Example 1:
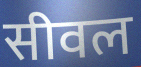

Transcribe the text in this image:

सीवल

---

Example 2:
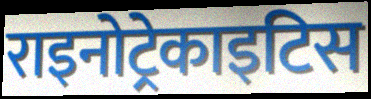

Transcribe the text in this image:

राइनोट्रेकाइटिस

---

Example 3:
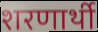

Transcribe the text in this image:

शरणार्थी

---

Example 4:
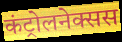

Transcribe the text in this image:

कंट्रोलनेक्सस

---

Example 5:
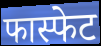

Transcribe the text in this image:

फास्फेट